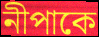
নীপাকে